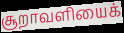
சூறாவளியைக்